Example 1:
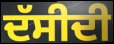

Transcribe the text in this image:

ਦੱਸੀਦੀ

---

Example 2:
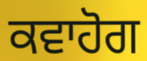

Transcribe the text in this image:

ਕਵਾਹੋਗ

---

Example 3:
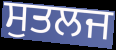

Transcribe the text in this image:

ਸੁਤਲਜ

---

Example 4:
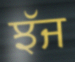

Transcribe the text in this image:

ਝੱਜ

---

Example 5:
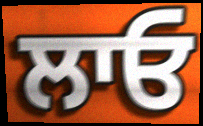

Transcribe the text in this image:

ਲਾਓ